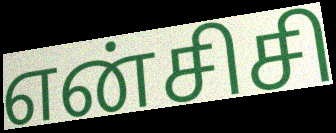
என்சிசி